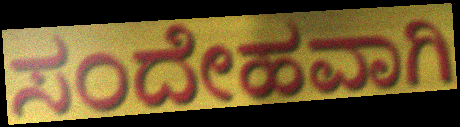
ಸಂದೇಹವಾಗಿ